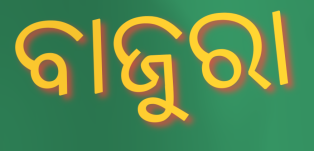
ବାଜୁରା